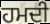
ਹਮਦੀ